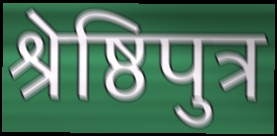
श्रेष्ठिपुत्र